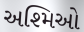
અશ્મિઓ